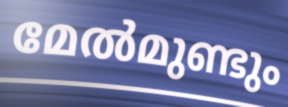
മേൽമുണ്ടും